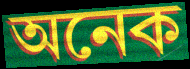
অনেক